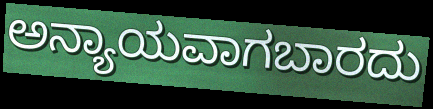
ಅನ್ಯಾಯವಾಗಬಾರದು